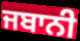
ਜਬਾਨੀ